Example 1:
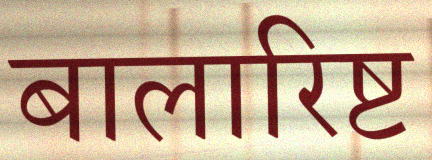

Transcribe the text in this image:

बालारिष्ट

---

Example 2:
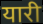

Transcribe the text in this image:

यारी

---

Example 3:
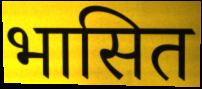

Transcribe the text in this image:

भासित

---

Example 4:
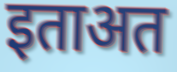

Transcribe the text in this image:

इताअत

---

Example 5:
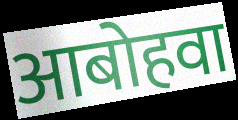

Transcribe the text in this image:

आबोहवा